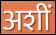
अशीं